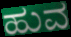
ಹುವ